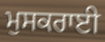
ਮੁਸਕਰਾਈ